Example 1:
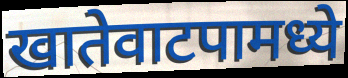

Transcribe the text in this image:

खातेवाटपामध्ये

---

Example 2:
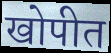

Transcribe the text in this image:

खोपीत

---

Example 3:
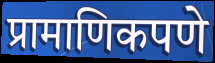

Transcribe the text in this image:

प्रामाणिकपणे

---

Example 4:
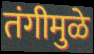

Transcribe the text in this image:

तंगीमुळे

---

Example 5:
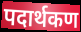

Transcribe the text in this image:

पदार्थकण